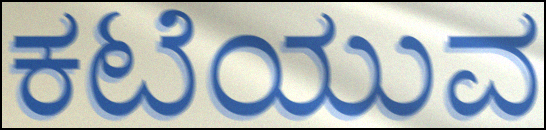
ಕಟೆಯುವ